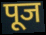
पूज